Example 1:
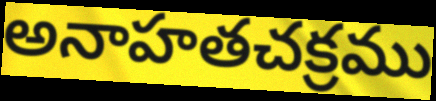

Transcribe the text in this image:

అనాహతచక్రము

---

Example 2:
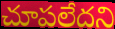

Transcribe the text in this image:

చూపలేదని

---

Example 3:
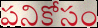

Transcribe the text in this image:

పనికోసం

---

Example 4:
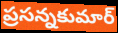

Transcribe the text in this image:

ప్రసన్నకుమార్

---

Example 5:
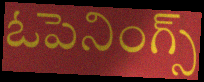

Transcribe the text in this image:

ఓపెనింగ్స్